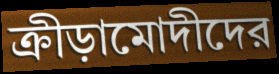
ক্রীড়ামোদীদের